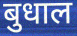
बुधाल